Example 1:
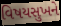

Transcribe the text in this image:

વિષયસુખને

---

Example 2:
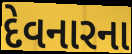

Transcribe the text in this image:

દેવનારના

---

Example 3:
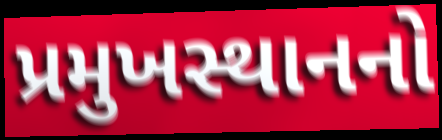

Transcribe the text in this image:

પ્રમુખસ્થાનનો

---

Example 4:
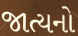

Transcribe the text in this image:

જાત્યનો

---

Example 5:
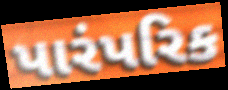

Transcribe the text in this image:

પારંપરિક